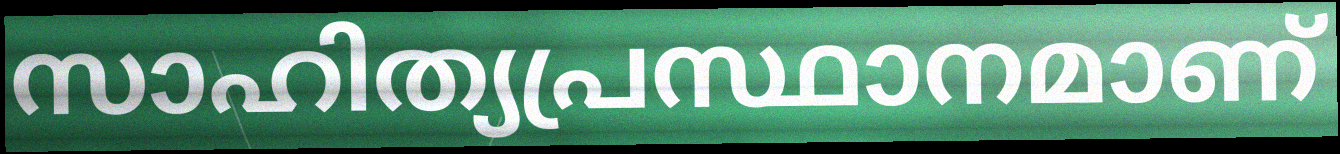
സാഹിത്യപ്രസ്ഥാനമാണ്